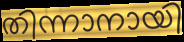
തിന്നാനായി